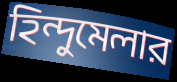
হিন্দুমেলার